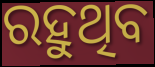
ରହୁଥିବ